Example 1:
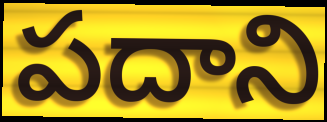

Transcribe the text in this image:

పదాని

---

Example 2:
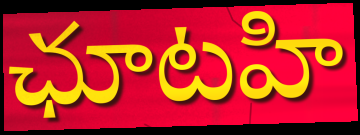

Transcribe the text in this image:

ఛూటహి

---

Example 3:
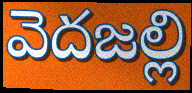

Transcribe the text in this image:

వెదజల్లి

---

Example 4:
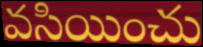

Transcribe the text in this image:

వసియించు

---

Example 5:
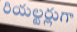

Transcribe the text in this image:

రియల్టర్లుగా